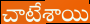
చాటేశాయి